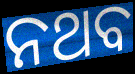
ନଥବ